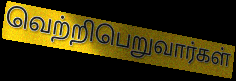
வெற்றிபெறுவார்கள்